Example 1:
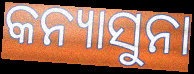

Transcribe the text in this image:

କନ୍ୟାସୁନା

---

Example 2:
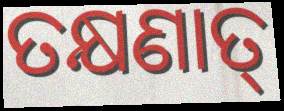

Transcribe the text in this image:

ତକ୍ଷଣାତ୍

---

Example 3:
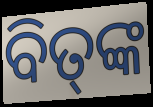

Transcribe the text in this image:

ବିତ୍‌ଙ୍କ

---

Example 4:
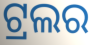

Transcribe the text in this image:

ଟ୍ରଲର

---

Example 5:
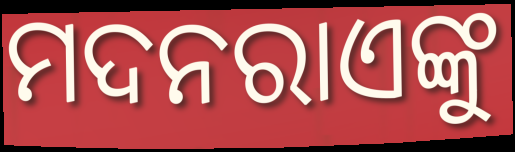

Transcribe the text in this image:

ମଦନରାଏଙ୍କୁ